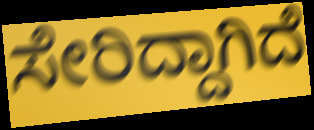
ಸೇರಿದ್ದಾಗಿದೆ